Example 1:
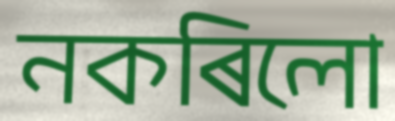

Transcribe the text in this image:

নকৰিলো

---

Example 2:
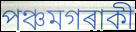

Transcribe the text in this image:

পঞ্চমগৰাকী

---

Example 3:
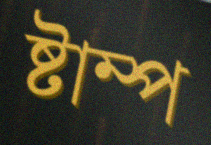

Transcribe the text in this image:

ষ্টাম্প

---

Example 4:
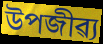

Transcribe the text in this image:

উপজীৱ্য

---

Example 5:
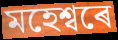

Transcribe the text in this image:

মহেশ্বৰে